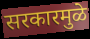
सरकारमुळे